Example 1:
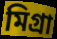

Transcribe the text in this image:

মিগ্রা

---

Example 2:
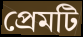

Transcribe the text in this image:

প্রেমটি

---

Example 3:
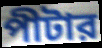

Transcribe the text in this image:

পীটার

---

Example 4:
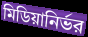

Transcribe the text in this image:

মিডিয়ানির্ভর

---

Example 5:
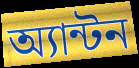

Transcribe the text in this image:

অ্যান্টন